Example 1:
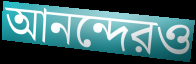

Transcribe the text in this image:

আনন্দেরও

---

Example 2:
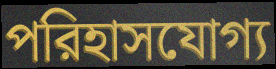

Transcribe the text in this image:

পরিহাসযোগ্য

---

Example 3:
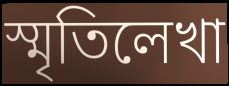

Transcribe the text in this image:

স্মৃতিলেখা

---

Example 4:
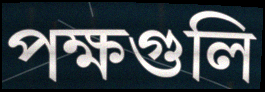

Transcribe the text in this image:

পক্ষগুলি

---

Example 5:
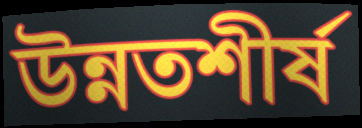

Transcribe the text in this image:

উন্নতশীর্ষ